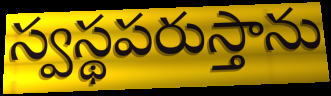
స్వస్థపరుస్తాను